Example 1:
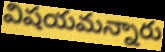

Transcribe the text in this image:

విషయమన్నారు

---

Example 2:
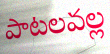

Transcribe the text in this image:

పాటలవల్ల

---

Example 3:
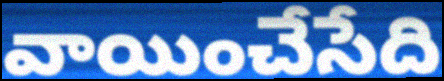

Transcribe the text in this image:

వాయించేసేది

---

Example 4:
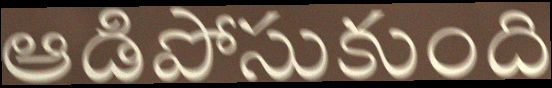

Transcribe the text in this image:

ఆడిపోసుకుంది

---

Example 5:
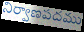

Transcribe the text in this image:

నిర్వాణపదము